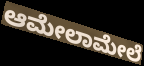
ಆಮೇಲಾಮೇಲೆ